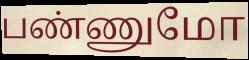
பண்ணுமோ